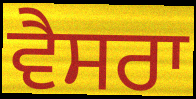
ਵੈਸਰਾ